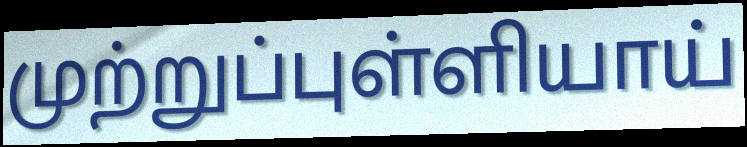
முற்றுப்புள்ளியாய்